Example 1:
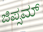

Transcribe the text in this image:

ಜಿಪ್ಸಮ್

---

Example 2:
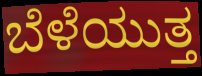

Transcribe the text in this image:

ಬೆಳೆಯುತ್ತ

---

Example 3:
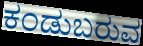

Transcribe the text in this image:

ಕಂಡುಬರುವ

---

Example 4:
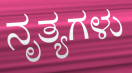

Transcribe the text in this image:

ನೃತ್ಯಗಳು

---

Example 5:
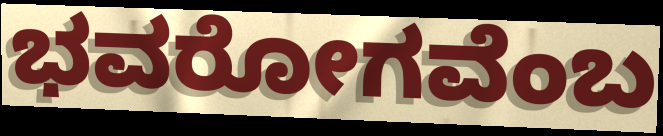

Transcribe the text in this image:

ಭವರೋಗವೆಂಬ